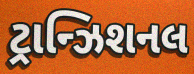
ટ્રાન્ઝિશનલ